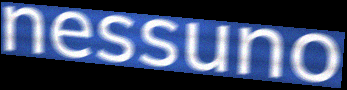
nessuno